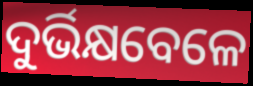
ଦୁର୍ଭିକ୍ଷବେଳେ